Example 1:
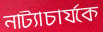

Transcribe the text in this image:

নাট্যাচার্যকে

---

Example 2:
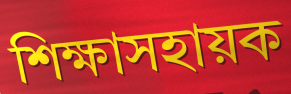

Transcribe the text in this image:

শিক্ষাসহায়ক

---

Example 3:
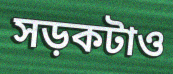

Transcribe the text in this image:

সড়কটাও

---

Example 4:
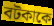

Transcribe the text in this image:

বটকাকে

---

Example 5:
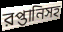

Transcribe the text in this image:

রপ্তানিসহ